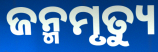
ଜନ୍ମମୃତ୍ୟୁ